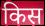
किस